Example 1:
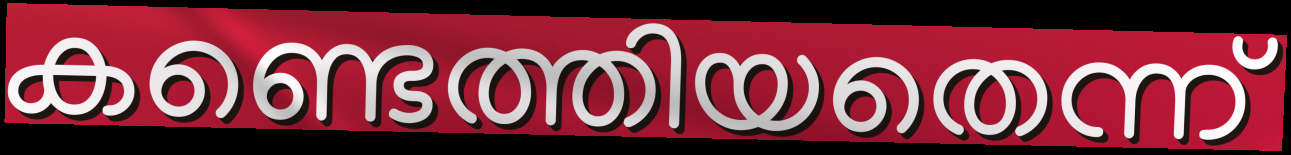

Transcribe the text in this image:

കണ്ടെത്തിയതെന്ന്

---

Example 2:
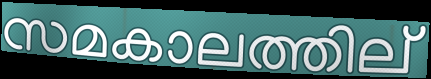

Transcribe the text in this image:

സമകാലത്തില്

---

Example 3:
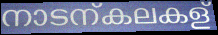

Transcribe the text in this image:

നാടന്കലകള്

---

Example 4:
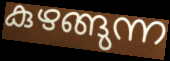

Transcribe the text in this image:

കുഴങ്ങുന്ന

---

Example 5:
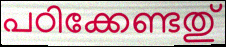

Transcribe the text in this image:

പഠിക്കേണ്ടതു്